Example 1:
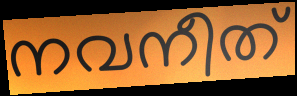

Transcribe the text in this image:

നവനീത്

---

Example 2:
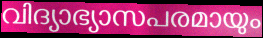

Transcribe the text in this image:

വിദ്യാഭ്യാസപരമായും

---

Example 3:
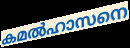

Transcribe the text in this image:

കമൽഹാസനെ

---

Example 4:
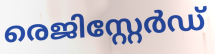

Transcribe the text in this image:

രെജിസ്റ്റേർഡ്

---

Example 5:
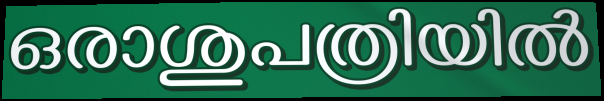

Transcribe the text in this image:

ഒരാശുപത്രിയിൽ